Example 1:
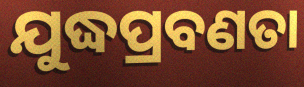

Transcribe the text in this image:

ଯୁଦ୍ଧପ୍ରବଣତା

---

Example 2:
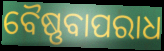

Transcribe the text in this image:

ବୈଷ୍ଣବାପରାଧ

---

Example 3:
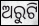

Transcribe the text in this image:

ଅରୁଟି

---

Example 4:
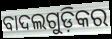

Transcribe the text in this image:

ବାଦଲଗୁଡ଼ିକର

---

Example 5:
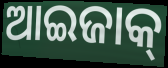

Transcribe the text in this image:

ଆଇଜାକ୍